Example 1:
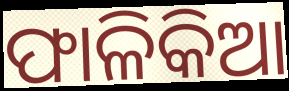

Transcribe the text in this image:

ଫାଳିକିଆ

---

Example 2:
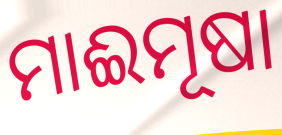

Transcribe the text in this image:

ମାଈମୂଷା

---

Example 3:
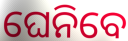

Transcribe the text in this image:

ଘେନିବେ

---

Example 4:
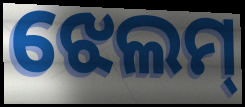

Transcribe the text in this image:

ଝେଲମ୍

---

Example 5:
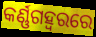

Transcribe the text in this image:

କର୍ଣ୍ଣଗହ୍ଵରରେ